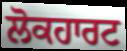
ਲੋਕਹਾਰਟ